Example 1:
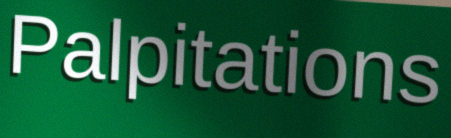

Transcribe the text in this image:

Palpitations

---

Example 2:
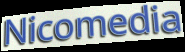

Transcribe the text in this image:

Nicomedia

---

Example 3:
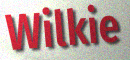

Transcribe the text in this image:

Wilkie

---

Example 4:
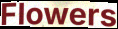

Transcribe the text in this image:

Flowers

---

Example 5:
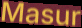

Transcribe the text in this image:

Masur